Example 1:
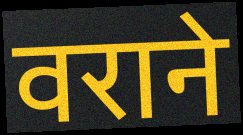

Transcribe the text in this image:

वराने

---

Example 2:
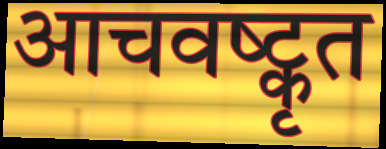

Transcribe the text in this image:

आचवष्ट्कृत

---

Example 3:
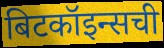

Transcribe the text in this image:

बिटकॉइन्सची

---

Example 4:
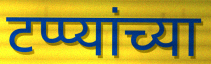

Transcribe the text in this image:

टप्प्यांच्या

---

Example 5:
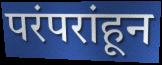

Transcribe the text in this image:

परंपरांहून